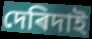
দেৰিদাই